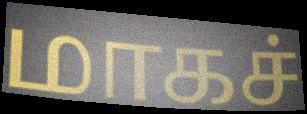
மாகச்